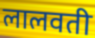
लालवती